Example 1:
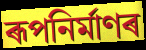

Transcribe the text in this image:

ৰূপনিৰ্মাণৰ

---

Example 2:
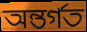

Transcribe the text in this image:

অন্তৰ্গত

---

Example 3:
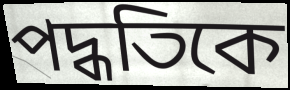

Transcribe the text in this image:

পদ্ধতিকে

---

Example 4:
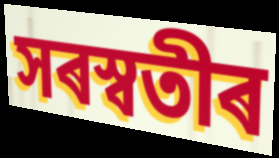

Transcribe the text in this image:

সৰস্বতীৰ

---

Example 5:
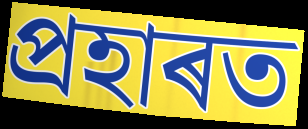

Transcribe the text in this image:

প্ৰহাৰত